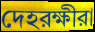
দেহরক্ষীরা